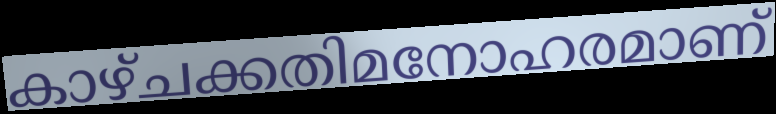
കാഴ്ചക്കതിമനോഹരമാണ്